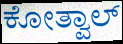
ಕೋತ್ವಾಲ್